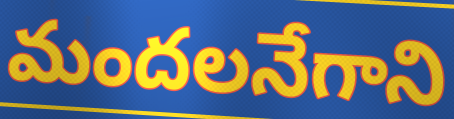
మందలనేగాని